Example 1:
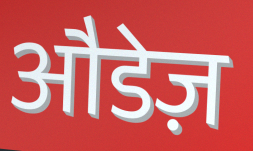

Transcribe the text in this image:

औडेज़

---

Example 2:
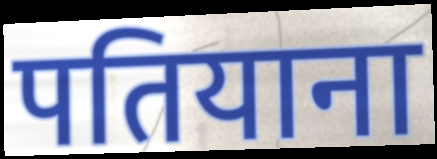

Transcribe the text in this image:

पतियाना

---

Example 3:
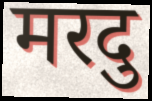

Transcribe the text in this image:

मरदु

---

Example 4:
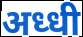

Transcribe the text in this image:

अध्धी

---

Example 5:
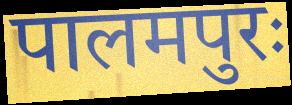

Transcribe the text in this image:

पालमपुरः